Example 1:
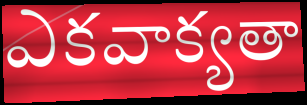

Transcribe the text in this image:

ఎకవాక్యతా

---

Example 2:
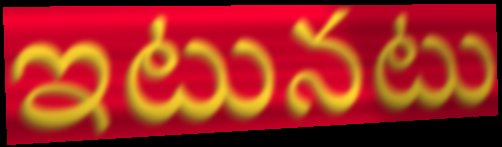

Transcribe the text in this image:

ఇటునటు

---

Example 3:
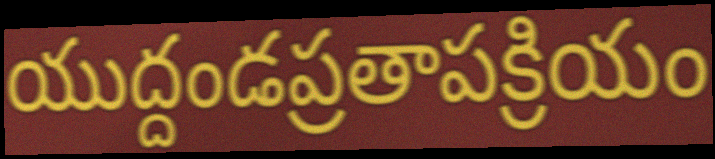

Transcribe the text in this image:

యుద్దండప్రతాపక్రియం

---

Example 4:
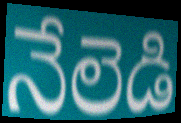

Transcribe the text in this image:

నేలెడి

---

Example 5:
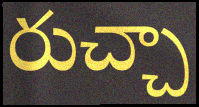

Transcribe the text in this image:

రుచ్చా